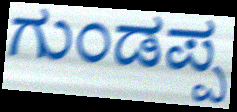
ಗುಂಡಪ್ಪ